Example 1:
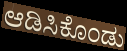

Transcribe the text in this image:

ಆಡಿಸಿಕೊಂಡು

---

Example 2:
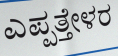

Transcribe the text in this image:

ಎಪ್ಪತ್ತೇಳರ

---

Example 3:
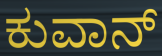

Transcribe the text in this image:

ಕುವಾನ್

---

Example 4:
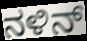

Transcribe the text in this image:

ನಳಿನ್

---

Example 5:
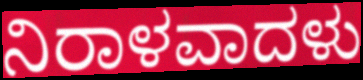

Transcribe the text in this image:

ನಿರಾಳವಾದಳು